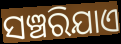
ସଞ୍ଚରିଯାଏ